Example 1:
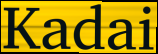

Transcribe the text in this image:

Kadai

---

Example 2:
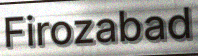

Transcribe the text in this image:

Firozabad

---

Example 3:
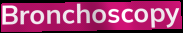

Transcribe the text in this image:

Bronchoscopy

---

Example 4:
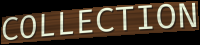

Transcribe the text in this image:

COLLECTION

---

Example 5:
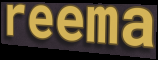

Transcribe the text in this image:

reema